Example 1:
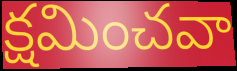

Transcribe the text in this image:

క్షమించవా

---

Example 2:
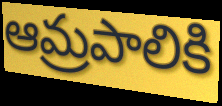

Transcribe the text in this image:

ఆమ్రపాలికి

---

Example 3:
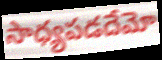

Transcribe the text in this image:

సాధ్యపడదేమో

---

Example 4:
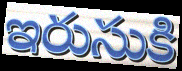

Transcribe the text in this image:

ఇరుసుకి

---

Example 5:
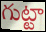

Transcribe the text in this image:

గుట్టా